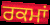
ਰਕਮਾਂ